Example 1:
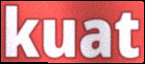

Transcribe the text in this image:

kuat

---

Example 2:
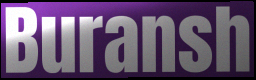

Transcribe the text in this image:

Buransh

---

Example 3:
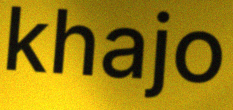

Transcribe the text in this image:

khajo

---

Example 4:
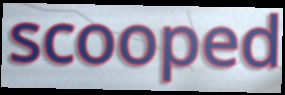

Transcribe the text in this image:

scooped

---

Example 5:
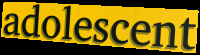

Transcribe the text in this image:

adolescent